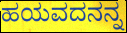
ಹಯವದನನ್ನ